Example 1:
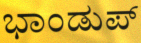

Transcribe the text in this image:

ಭಾಂಡುಪ್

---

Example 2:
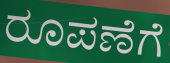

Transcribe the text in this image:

ರೂಪಣೆಗೆ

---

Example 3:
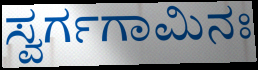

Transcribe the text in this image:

ಸ್ವರ್ಗಗಾಮಿನಃ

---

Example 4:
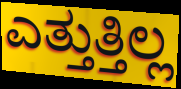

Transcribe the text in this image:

ಎತ್ತುತ್ತಿಲ್ಲ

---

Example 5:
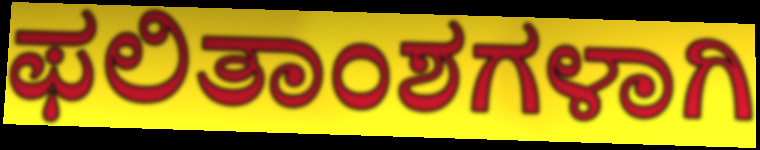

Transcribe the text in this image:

ಫಲಿತಾಂಶಗಳಾಗಿ